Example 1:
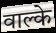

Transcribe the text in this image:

वाल्के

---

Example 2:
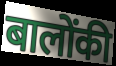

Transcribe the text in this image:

बालोंकी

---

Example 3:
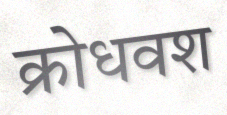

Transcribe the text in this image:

क्रोधवश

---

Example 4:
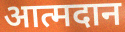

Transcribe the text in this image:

आत्मदान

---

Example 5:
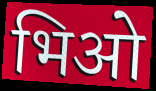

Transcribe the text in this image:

भिओ